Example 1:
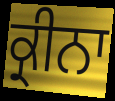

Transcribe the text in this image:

ਕ੍ਰੀਨਾ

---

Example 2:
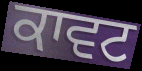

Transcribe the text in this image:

ਕਾਵਟ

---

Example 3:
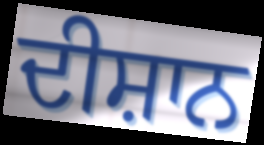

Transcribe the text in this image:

ਦੀਸ਼ਾਨ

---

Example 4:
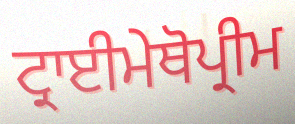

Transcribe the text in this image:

ਟ੍ਰਾਈਮੇਥੋਪ੍ਰੀਮ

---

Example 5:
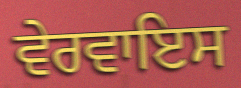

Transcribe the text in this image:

ਵੇਰਵਾਇਸ